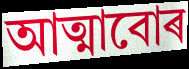
আত্মাবোৰ